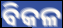
ବିକଳ